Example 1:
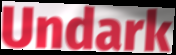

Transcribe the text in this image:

Undark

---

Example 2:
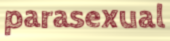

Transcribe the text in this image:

parasexual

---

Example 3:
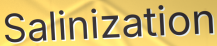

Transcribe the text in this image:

Salinization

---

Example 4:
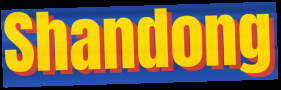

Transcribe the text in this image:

Shandong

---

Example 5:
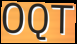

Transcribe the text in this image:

OQT